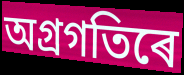
অগ্ৰগতিৰে